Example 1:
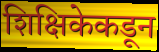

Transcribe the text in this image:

शिक्षिकेकडून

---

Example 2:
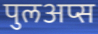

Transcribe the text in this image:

पुलअप्स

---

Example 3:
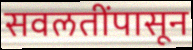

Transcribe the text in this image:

सवलतींपासून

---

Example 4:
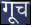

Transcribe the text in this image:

गूच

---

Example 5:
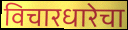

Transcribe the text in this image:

विचारधारेचा